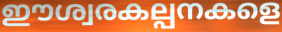
ഈശ്വരകല്പനകളെ